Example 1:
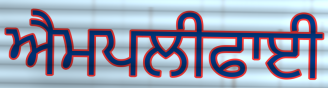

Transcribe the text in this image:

ਐਮਪਲੀਫਾਈ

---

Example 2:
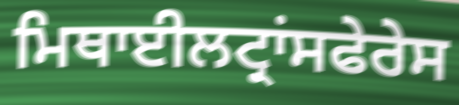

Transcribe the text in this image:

ਮਿਥਾਈਲਟ੍ਰਾਂਸਫੇਰੇਸ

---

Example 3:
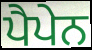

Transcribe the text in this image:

ਪੈਪੇਨ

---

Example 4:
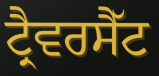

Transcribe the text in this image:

ਟ੍ਰੈਵਰਸੈੱਟ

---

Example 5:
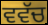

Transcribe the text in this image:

ਵਵੱਚ